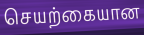
செயற்கையான